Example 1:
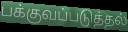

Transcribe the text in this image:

பக்குவப்படுத்தல்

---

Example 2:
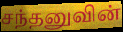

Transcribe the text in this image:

சந்தனுவின்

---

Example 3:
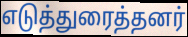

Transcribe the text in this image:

எடுத்துரைத்தனர்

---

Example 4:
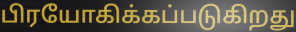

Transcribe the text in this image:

பிரயோகிக்கப்படுகிறது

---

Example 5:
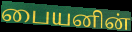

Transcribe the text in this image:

பையனின்